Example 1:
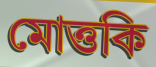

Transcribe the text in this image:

মোত্তকি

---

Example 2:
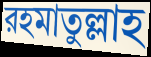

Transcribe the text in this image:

রহমাতুল্লাহ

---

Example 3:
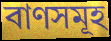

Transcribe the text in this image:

বাণসমূহ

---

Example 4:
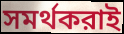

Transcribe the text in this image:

সমর্থকরাই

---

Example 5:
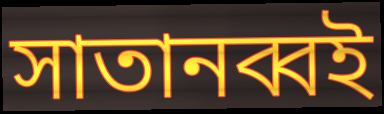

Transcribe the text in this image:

সাতানব্বই